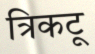
त्रिकटू